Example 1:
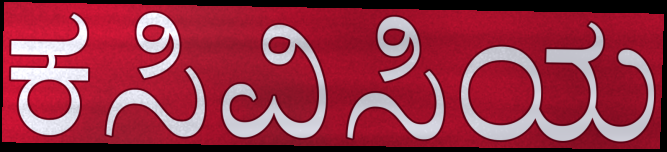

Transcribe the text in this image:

ಕಸಿವಿಸಿಯ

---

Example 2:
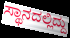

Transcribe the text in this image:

ಸ್ಥಾನದಲ್ಲಿದ್ದು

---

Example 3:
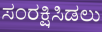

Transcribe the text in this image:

ಸಂರಕ್ಷಿಸಿಡಲು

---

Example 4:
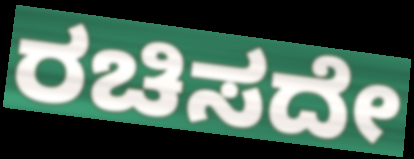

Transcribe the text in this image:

ರಚಿಸದೇ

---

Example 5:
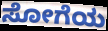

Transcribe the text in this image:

ಸೋಗೆಯ